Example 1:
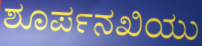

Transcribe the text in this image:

ಶೂರ್ಪನಖಿಯು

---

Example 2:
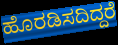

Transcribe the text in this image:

ಹೊರಡಿಸದಿದ್ದರೆ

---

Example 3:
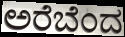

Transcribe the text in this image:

ಅರೆಬೆಂದ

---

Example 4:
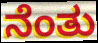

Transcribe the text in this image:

ನೆಂತು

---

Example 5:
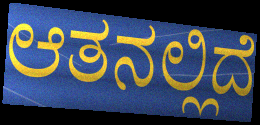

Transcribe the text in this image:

ಆತನಲ್ಲಿದೆ